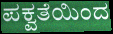
ಪಕ್ವತೆಯಿಂದ